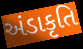
અંડાકૃતિ